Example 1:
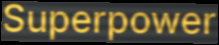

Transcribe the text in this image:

Superpower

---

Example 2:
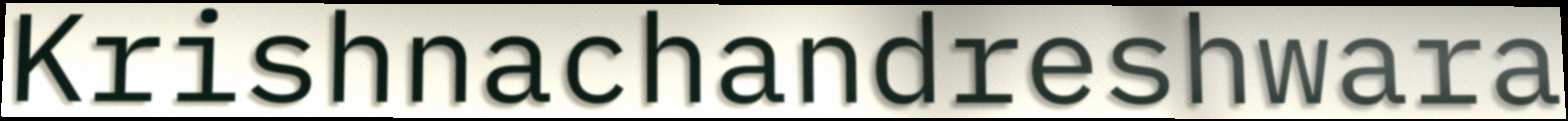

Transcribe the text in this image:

Krishnachandreshwara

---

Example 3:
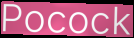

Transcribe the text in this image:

Pocock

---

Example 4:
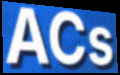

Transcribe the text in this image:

ACs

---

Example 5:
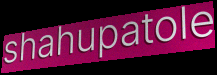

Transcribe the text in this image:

shahupatole